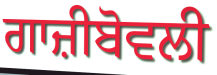
ਗਾਜ਼ੀਬੋਵਲੀ